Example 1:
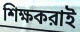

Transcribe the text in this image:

শিক্ষকরাই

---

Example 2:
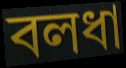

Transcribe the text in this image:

বলধা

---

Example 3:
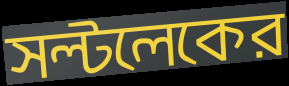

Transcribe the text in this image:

সল্টলেকের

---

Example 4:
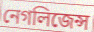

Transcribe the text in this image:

নেগলিজেন্স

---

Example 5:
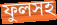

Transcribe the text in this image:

ফুলসহ